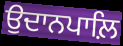
ਉਦਾਨਪਾਲ਼ਿ